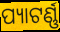
ପ୍ୟାଟର୍ଣ୍ଣ